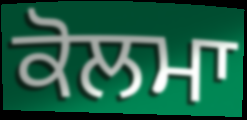
ਕੋਲਮਾ